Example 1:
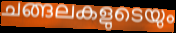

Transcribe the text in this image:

ചങ്ങലകളുടെയും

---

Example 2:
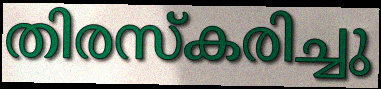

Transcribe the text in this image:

തിരസ്കരിച്ചു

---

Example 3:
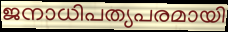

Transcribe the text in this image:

ജനാധിപത്യപരമായി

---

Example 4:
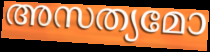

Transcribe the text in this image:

അസത്യമോ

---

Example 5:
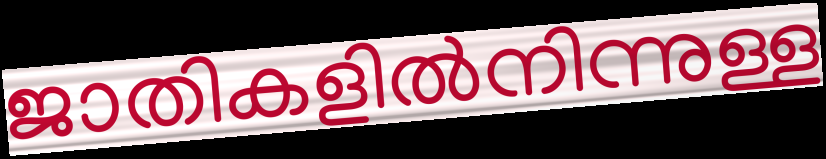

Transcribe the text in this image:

ജാതികളിൽനിന്നുള്ള